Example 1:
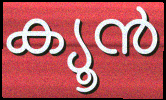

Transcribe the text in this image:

ക്യൂൻ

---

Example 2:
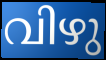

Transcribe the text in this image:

വിഴു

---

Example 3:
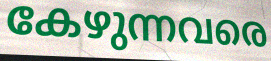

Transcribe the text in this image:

കേഴുന്നവരെ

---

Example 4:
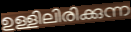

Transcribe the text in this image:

ഉള്ളിലിരിക്കുന്ന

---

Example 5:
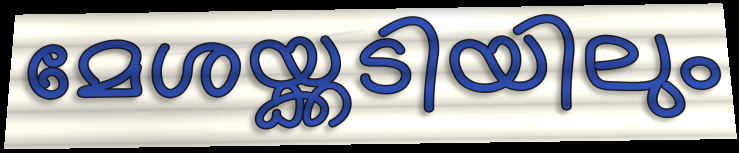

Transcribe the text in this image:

മേശയ്ക്കടിയിലും